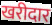
खरीदार